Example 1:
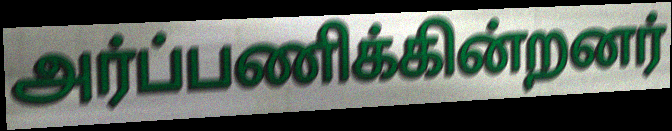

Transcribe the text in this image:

அர்ப்பணிக்கின்றனர்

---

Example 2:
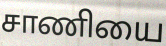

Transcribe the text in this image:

சாணியை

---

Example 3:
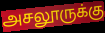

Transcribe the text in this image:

அசலூருக்கு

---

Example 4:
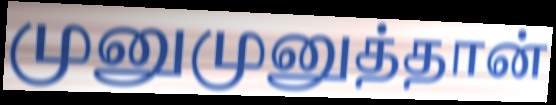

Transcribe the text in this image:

முனுமுனுத்தான்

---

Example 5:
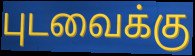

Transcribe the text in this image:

புடவைக்கு